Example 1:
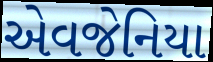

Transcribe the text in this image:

એવજેનિયા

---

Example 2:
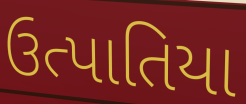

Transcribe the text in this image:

ઉત્પાતિયા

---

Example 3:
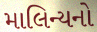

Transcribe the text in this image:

માલિન્યનો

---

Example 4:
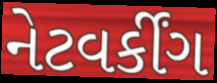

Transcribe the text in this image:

નેટવર્કીંગ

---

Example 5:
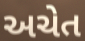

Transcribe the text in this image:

અચેત